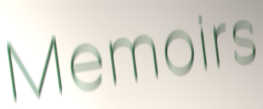
Memoirs